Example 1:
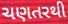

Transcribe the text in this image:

ચણતરથી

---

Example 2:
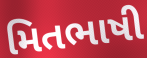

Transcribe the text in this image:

મિતભાષી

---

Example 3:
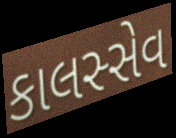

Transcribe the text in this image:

કાલસ્સેવ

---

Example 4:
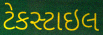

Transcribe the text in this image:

ટેકસ્ટાઇલ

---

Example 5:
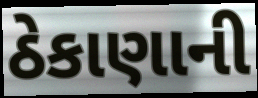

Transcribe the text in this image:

ઠેકાણાની